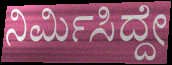
ನಿರ್ಮಿಸಿದ್ದೇ